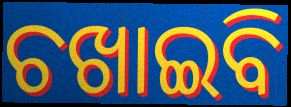
ଚଖାଇବି